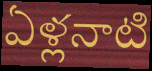
ఏళ్లనాటి